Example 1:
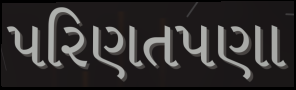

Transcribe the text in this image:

પરિણતપણા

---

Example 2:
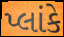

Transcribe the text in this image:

પ્લાંકે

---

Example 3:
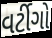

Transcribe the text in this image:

વર્ટીગો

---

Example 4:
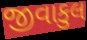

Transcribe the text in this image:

જીવાકુલ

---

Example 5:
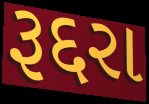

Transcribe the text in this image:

રૂદ્દરા